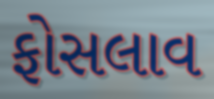
ફોસલાવ